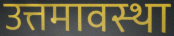
उत्तमावस्था